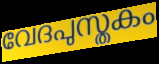
വേദപുസ്തകം